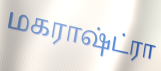
மகராஷ்ட்ரா